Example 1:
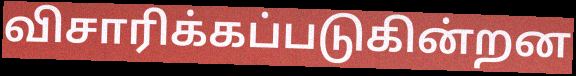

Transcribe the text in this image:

விசாரிக்கப்படுகின்றன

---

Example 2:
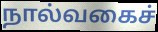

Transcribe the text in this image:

நால்வகைச்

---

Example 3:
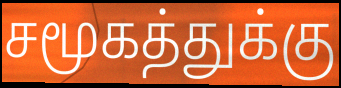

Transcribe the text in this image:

சமூகத்துக்கு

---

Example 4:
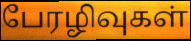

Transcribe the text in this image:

பேரழிவுகள்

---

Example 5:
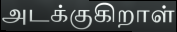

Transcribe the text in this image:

அடக்குகிறாள்